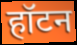
हॉटन